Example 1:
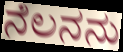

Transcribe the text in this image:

ನೆಲನನು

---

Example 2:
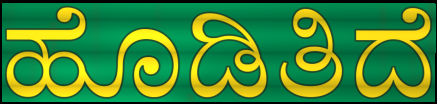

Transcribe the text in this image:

ಹೊಡಿತಿದೆ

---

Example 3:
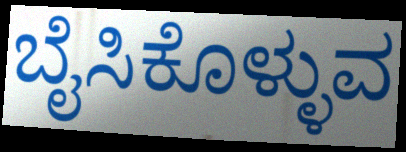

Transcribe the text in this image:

ಬೈಸಿಕೊಳ್ಳುವ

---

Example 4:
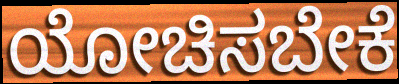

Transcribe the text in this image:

ಯೋಚಿಸಬೇಕೆ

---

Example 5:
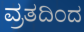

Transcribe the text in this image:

ವ್ರತದಿಂದ